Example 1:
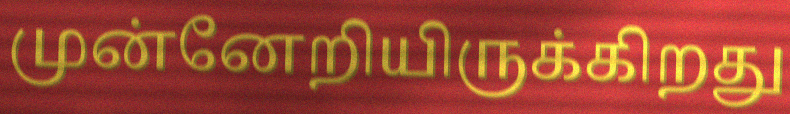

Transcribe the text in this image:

முன்னேறியிருக்கிறது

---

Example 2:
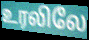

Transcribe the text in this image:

உரலிலே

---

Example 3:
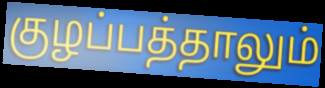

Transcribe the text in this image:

குழப்பத்தாலும்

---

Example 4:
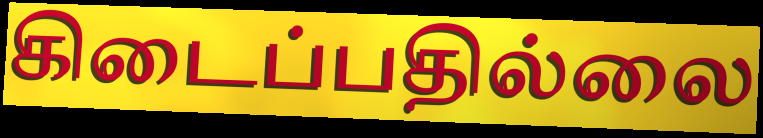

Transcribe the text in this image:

கிடைப்பதில்லை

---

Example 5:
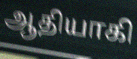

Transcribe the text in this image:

ஆதியாகி